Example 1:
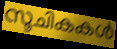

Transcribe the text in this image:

സൂചികകൾ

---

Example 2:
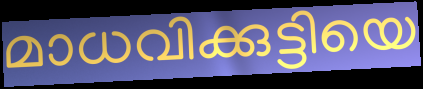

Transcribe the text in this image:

മാധവിക്കുട്ടിയെ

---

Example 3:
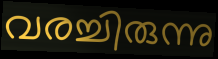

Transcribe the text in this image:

വരച്ചിരുന്നു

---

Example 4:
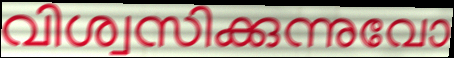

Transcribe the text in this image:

വിശ്വസിക്കുന്നുവോ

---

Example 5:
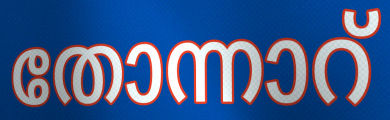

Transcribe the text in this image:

തോന്നാറ്